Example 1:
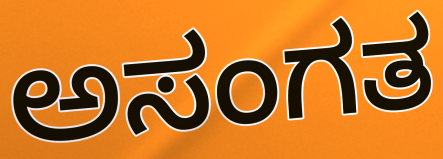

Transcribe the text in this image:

ಅಸಂಗತ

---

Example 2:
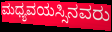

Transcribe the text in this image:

ಮಧ್ಯವಯಸ್ಸಿನವರು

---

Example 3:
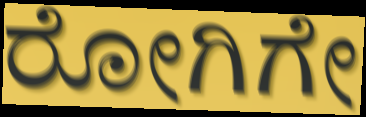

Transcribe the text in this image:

ರೋಗಿಗೇ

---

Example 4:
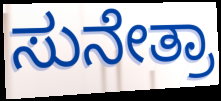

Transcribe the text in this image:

ಸುನೇತ್ರಾ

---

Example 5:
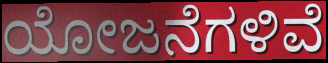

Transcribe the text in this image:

ಯೋಜನೆಗಳಿವೆ